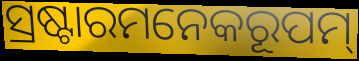
ସ୍ରଷ୍ଟାରମନେକରୂପମ୍